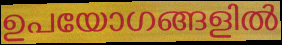
ഉപയോഗങ്ങളിൽ